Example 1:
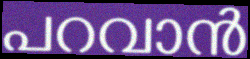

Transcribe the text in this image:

പറവാൻ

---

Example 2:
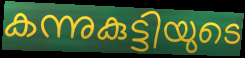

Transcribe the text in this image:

കന്നുകുട്ടിയുടെ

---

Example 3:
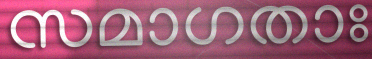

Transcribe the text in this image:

സമാഗതാഃ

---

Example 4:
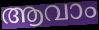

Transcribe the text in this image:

ആവാം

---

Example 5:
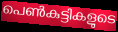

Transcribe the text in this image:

പെൺകുട്ടികളുടെ